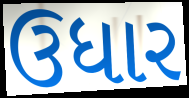
ઉધાર